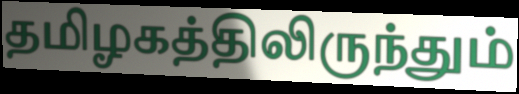
தமிழகத்திலிருந்தும்